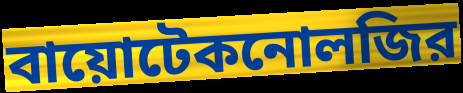
বায়োটেকনোলজির